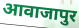
आवाजापुर